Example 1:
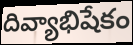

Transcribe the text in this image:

దివ్యాభిషేకం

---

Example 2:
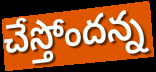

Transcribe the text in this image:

చేస్తోందన్న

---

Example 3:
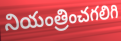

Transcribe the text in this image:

నియంత్రించగలిగి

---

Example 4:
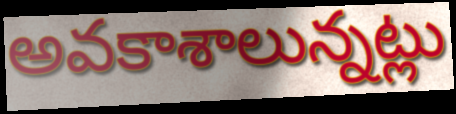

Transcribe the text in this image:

అవకాశాలున్నట్లు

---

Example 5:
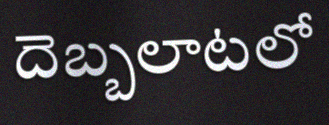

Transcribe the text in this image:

దెబ్బలాటలో